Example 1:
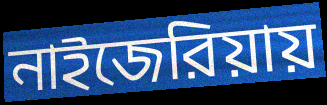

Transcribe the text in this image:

নাইজেরিয়ায়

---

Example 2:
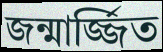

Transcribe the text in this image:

জন্মার্জ্জিত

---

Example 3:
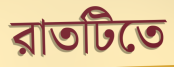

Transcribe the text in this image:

রাতটিতে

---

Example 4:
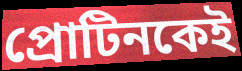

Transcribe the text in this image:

প্রোটিনকেই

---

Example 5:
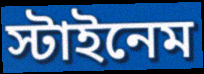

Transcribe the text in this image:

স্টাইনেম